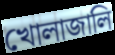
খোলাজালি